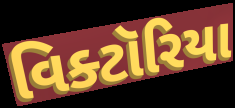
વિક્ટૉરિયા